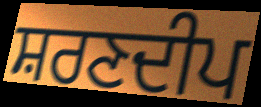
ਸ਼ਰਣਦੀਪ